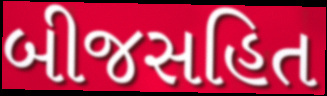
બીજસહિત